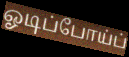
ஓடிப்போய்ப்